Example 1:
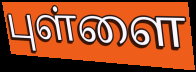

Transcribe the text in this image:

புள்ளை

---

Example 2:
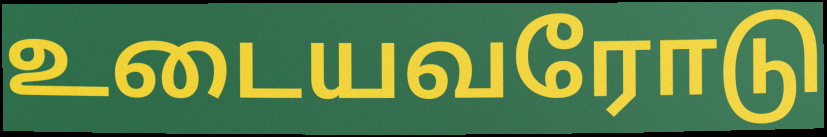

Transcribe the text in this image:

உடையவரோடு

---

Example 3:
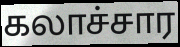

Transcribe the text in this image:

கலாச்சார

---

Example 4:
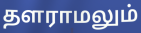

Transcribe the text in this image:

தளராமலும்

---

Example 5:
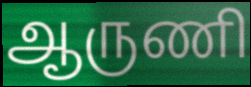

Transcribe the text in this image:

ஆருணி